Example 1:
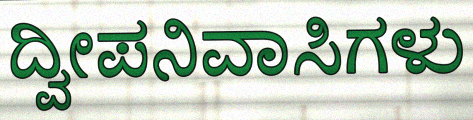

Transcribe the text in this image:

ದ್ವೀಪನಿವಾಸಿಗಳು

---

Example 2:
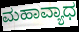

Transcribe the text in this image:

ಮಹಾವ್ಯಾಧ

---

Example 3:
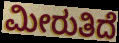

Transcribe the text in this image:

ಮೀರುತಿದೆ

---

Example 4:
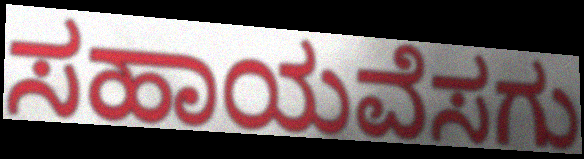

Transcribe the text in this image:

ಸಹಾಯವೆಸಗು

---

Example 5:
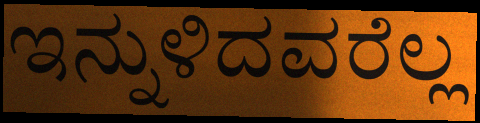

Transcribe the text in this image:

ಇನ್ನುಳಿದವರೆಲ್ಲ